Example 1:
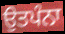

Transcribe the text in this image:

ਉਤਪੰਨਾ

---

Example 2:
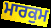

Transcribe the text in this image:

ਮਾਰਕੁਮ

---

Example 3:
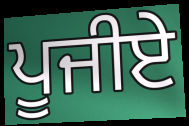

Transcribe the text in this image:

ਪੂਜੀਏ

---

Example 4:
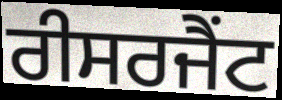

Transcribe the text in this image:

ਰੀਸਰਜੈਂਟ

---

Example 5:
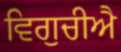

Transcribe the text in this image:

ਵਿਗੁਚੀਐ